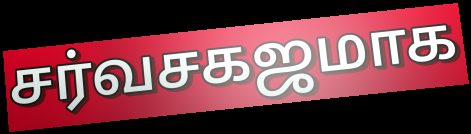
சர்வசகஜமாக